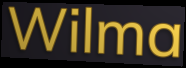
Wilma